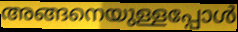
അങ്ങനെയുള്ളപ്പോൾ